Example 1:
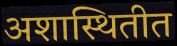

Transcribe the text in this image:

अशास्थितीत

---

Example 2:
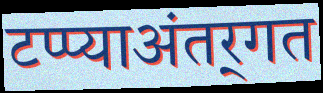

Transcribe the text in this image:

टप्प्याअंतर्गत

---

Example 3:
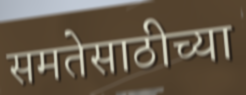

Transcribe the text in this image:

समतेसाठीच्या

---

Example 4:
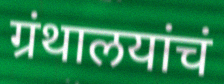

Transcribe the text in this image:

ग्रंथालयांचं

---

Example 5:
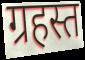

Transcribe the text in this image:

ग्रहस्त